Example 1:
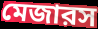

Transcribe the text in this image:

মেজারস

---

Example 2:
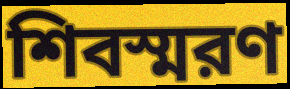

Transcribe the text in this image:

শিবস্মরণ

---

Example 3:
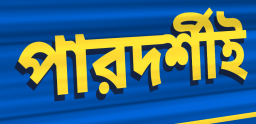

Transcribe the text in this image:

পারদর্শীই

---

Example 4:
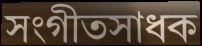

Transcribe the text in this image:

সংগীতসাধক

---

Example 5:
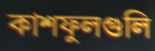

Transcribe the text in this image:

কাশফুলগুলি